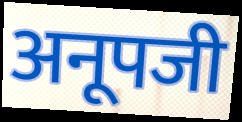
अनूपजी